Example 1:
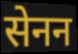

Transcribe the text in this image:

सेनन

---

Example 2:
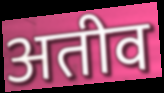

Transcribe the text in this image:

अतीव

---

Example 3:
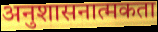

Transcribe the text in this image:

अनुशासनात्मकता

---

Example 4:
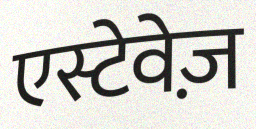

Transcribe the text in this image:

एस्टेवेज़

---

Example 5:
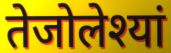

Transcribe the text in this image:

तेजोलेश्यां